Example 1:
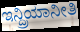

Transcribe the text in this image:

ಇನ್ದ್ರಿಯಾನೀತಿ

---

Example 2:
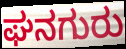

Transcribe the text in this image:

ಘನಗುರು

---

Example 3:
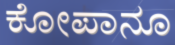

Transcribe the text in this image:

ಕೋಪಾನೂ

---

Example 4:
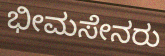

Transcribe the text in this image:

ಭೀಮಸೇನರು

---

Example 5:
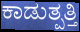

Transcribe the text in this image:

ಕಾಡುತ್ಪತ್ತಿ